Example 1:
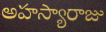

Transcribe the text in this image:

అహస్యారాజు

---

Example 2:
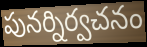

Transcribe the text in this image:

పునర్నిర్వచనం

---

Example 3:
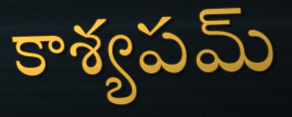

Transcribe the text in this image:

కాశ్యపమ్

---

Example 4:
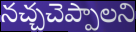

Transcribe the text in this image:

నచ్చచెప్పాలని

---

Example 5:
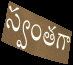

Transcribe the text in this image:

స్వంతగా